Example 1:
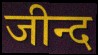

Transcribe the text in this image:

जीन्द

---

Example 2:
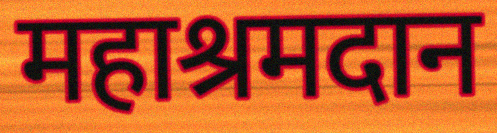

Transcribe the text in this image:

महाश्रमदान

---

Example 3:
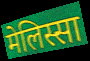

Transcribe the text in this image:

मेलिस्सा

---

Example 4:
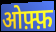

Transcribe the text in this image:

ओफ़्फ़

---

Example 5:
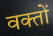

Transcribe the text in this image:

वक्तों